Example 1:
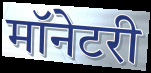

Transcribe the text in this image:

मॉनेटरी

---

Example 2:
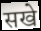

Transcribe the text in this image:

सखे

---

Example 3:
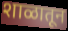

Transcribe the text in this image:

शाळातून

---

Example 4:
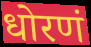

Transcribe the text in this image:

धोरणं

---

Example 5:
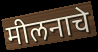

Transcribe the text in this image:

मीलनाचे